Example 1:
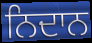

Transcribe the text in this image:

ਨਿਦਾਨ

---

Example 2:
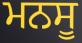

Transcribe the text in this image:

ਮਨਸੂ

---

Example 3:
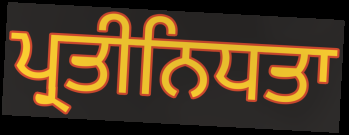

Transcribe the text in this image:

ਪ੍ਰਤੀਨਿਧਤਾ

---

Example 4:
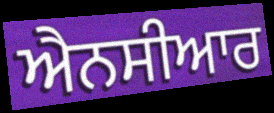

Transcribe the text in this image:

ਐਨਸੀਆਰ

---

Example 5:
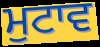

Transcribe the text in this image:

ਮੁਟਾਵ